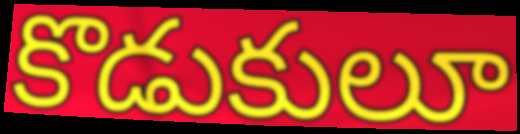
కొడుకులూ